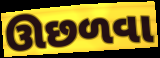
ઊછળવા